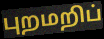
புறமறிப்